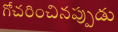
గోచరించినప్పుడు